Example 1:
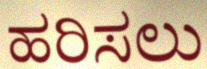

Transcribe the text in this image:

ಹರಿಸಲು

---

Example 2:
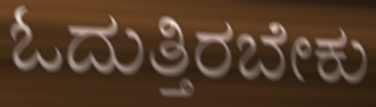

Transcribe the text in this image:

ಓದುತ್ತಿರಬೇಕು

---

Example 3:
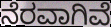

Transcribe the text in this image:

ನೆರವಾಗಿವೆ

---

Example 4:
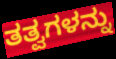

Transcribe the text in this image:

ತತ್ವಗಳನ್ನು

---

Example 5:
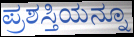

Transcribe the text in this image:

ಪ್ರಶಸ್ತಿಯನ್ನೂ